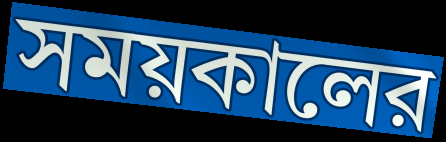
সময়কালের